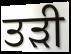
ਤੜੀ